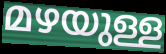
മഴയുള്ള